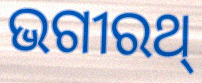
ଭଗୀରଥ୍